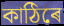
কাঠিৰে